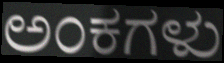
ಅಂಕಗಳು